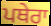
ਪਥੇਰਾ